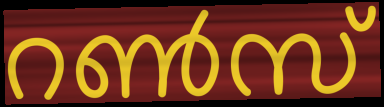
റൺസ്